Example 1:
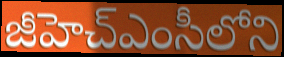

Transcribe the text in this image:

జీహెచ్ఎంసీలోని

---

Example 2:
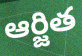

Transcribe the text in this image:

ఆర్జిత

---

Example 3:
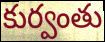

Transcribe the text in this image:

కుర్వంతు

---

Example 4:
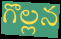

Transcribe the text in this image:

గొల్లన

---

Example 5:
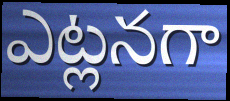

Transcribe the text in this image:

ఎట్లనగా